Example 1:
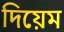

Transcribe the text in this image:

দিয়েম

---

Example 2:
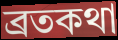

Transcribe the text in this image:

ব্রতকথা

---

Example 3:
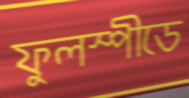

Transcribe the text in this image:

ফুলস্পীডে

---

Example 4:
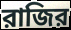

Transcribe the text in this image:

রাজির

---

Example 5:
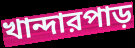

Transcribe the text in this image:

খান্দারপাড়